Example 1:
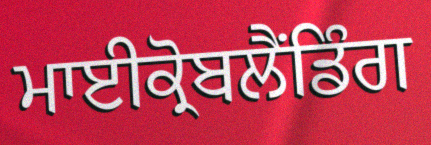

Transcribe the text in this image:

ਮਾਈਕ੍ਰੋਬਲੈਂਡਿੰਗ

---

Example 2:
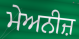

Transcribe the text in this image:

ਮੇਅਨੀਜ਼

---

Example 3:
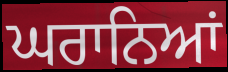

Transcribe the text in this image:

ਘਰਾਨਿਆਂ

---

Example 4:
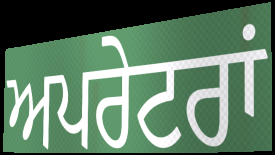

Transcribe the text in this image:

ਅਪਰੇਟਰਾਂ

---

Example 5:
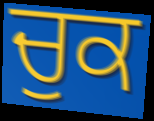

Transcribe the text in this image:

ਚੁਕ